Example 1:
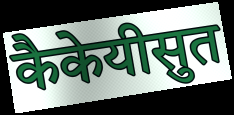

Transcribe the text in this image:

कैकेयीसुत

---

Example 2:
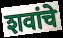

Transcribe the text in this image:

शवांचे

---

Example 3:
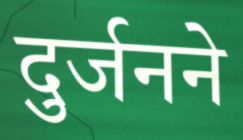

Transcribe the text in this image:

दुर्जनने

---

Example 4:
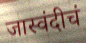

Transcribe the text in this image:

जास्वंदीचं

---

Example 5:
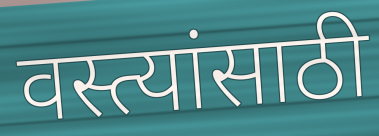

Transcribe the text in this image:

वस्त्यांसाठी